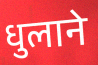
धुलाने